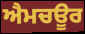
ਐਮਚਊਰ